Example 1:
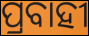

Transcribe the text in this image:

ପ୍ରବାହୀ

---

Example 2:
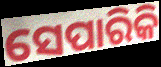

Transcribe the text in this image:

ସେପାରିକି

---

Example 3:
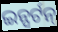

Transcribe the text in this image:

ଇନ୍ସର୍ଟନ୍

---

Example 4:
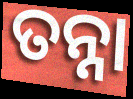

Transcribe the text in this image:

ତନ୍ନା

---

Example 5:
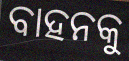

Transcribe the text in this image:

ବାହନକୁ